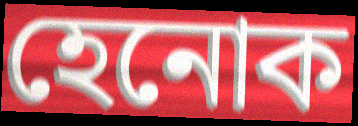
হেনোক